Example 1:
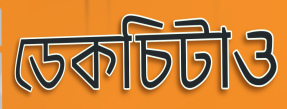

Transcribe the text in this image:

ডেকচিটাও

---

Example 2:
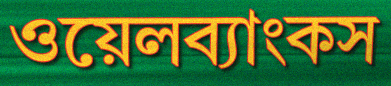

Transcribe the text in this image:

ওয়েলব্যাংকস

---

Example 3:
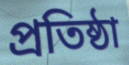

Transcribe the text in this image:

প্রতিষ্ঠা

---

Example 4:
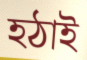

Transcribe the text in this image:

হঠাই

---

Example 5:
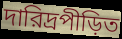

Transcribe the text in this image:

দারিদ্রপীড়িত